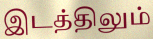
இடத்திலும்